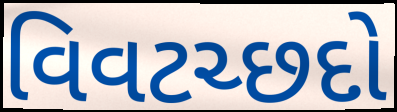
વિવટચ્છદો